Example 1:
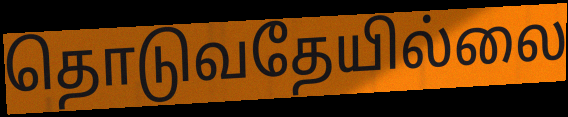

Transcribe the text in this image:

தொடுவதேயில்லை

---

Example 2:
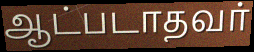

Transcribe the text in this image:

ஆட்படாதவர்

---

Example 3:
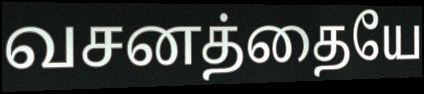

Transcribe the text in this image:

வசனத்தையே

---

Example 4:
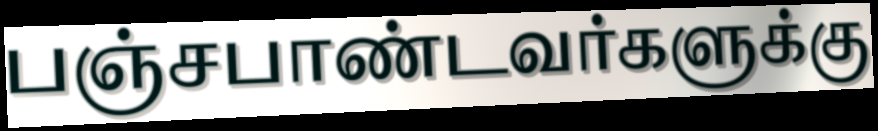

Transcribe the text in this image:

பஞ்சபாண்டவர்களுக்கு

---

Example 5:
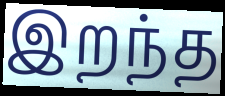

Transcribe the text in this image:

இறந்த